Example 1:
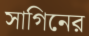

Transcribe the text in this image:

সাগিনের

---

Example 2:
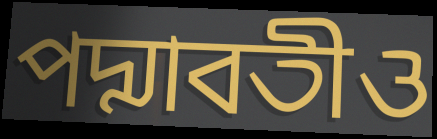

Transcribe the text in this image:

পদ্মাবতীও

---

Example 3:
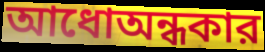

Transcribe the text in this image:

আধোঅন্ধকার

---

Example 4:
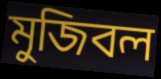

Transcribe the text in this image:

মুজিবল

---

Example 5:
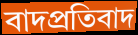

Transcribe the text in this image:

বাদপ্রতিবাদ